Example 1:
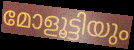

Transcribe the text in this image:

മോളൂട്ടിയും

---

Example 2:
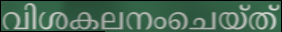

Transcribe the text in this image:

വിശകലനംചെയ്ത്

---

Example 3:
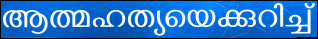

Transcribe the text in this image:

ആത്മഹത്യയെക്കുറിച്ച്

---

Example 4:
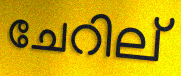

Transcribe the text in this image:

ചേറില്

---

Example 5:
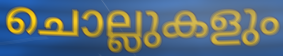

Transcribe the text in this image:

ചൊല്ലുകളും